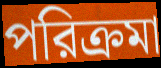
পরিক্রমা